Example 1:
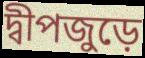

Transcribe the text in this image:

দ্বীপজুড়ে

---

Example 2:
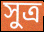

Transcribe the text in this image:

সুত্র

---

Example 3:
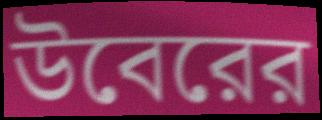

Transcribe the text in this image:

উবেরের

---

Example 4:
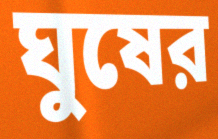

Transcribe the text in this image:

ঘুষের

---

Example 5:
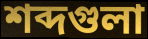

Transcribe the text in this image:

শব্দগুলা